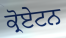
ਕ੍ਰੋਏਟਨ